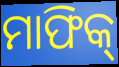
ମାଫିକ୍